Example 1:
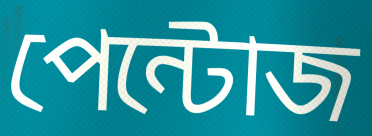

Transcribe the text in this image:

পেন্টোজ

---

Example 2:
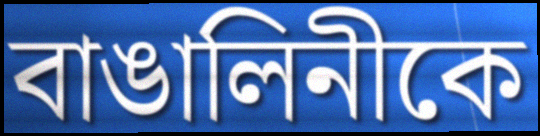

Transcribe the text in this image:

বাঙালিনীকে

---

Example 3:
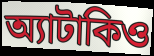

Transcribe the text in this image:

অ্যাটাকিও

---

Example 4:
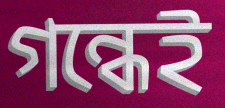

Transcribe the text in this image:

গন্ধেই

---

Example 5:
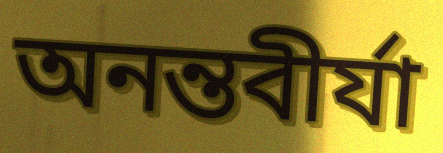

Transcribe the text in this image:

অনন্তবীর্যা